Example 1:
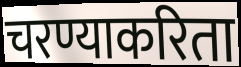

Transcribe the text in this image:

चरण्याकरिता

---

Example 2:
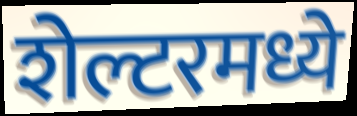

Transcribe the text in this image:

शेल्टरमध्ये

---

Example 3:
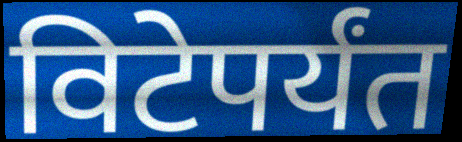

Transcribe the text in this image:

विटेपर्यंत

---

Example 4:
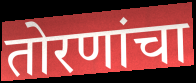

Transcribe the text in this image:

तोरणांचा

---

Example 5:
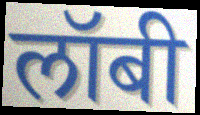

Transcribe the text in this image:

लॉबी